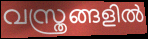
വസ്ത്രങ്ങളിൽ